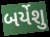
બર્યેશુ